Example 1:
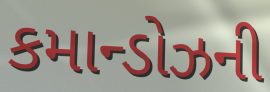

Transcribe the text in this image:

કમાન્ડોઝની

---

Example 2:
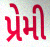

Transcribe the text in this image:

પ્રેમી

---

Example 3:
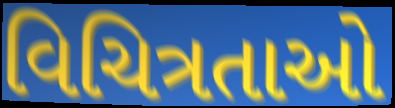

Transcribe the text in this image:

વિચિત્રતાઓ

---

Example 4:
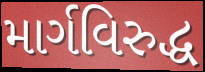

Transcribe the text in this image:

માર્ગવિરુદ્ધ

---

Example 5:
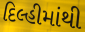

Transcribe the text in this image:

દિલ્હીમાંથી